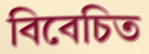
বিবেচিত